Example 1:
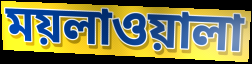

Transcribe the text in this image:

ময়লাওয়ালা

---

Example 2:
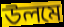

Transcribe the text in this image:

উলমে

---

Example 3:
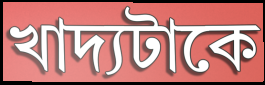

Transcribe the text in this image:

খাদ্যটাকে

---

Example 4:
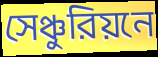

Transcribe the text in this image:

সেঞ্চুরিয়নে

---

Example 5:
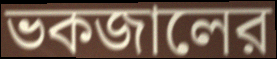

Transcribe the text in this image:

ভকজালের